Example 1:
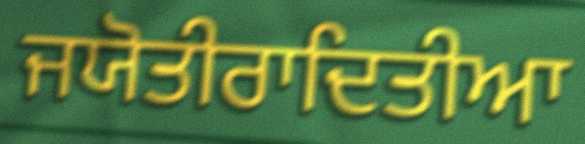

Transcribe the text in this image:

ਜਯੋਤੀਰਾਦਿਤੀਆ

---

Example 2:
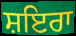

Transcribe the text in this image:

ਸ਼ਇਰਾ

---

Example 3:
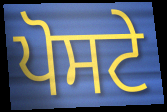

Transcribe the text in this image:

ਪੋਸਟੇ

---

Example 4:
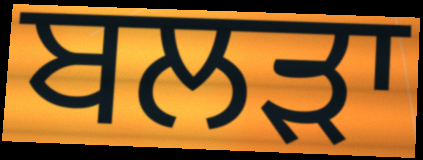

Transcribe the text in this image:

ਬਲੜਾ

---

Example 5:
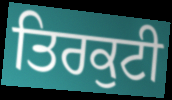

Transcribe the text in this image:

ਤਿਰਕੁਟੀ